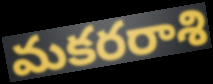
మకరరాశి